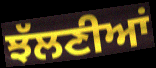
ਝੱਲਣੀਆਂ